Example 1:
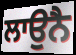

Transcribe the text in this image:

ਲਾਉਨੈ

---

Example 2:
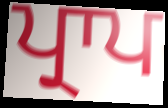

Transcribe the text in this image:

ਪ੍ਰਾਪ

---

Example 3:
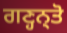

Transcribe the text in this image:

ਗਣ੍ਹਨ੍ਤੋ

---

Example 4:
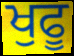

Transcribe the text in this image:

ਖੁਫੂ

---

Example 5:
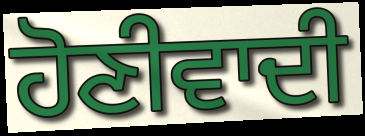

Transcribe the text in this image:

ਹੋਣੀਵਾਦੀ